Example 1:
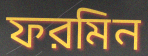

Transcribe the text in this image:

ফরমিন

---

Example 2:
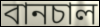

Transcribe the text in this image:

বানচাল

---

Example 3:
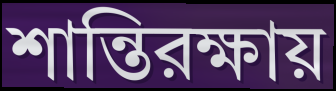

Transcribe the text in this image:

শান্তিরক্ষায়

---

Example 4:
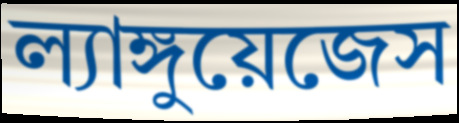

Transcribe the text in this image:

ল্যাঙ্গুয়েজেস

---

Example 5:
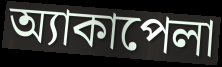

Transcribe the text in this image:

অ্যাকাপেলা